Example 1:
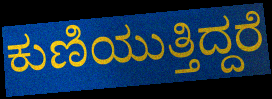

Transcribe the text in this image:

ಕುಣಿಯುತ್ತಿದ್ದರೆ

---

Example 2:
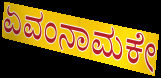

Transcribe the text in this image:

ಏವಂನಾಮಕೇ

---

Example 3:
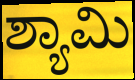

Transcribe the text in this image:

ಶ್ಯಾಮಿ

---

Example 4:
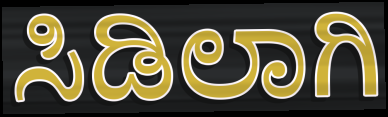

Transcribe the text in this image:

ಸಿಡಿಲಾಗಿ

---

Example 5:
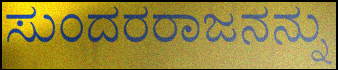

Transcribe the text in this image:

ಸುಂದರರಾಜನನ್ನು